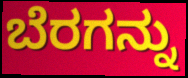
ಬೆರಗನ್ನು